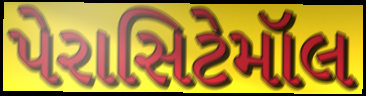
પેરાસિટેમૉલ